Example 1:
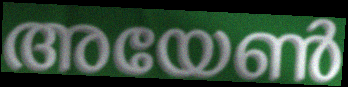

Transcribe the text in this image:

അയേൺ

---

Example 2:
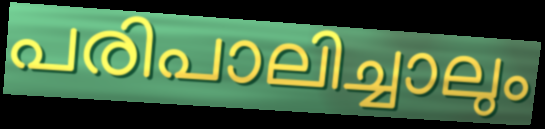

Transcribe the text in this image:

പരിപാലിച്ചാലും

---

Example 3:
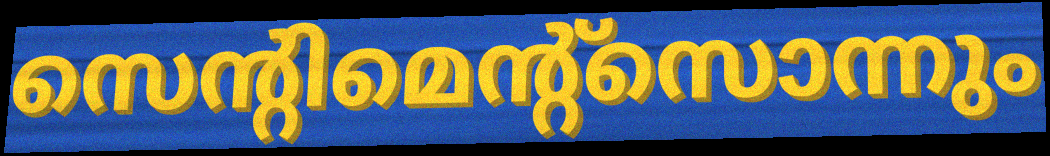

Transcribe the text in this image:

സെന്റിമെന്റ്സൊന്നും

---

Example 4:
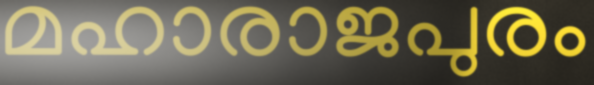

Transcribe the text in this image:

മഹാരാജപുരം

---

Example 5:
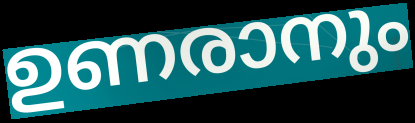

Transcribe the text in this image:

ഉണരാനും